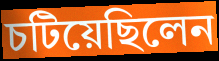
চটিয়েছিলেন